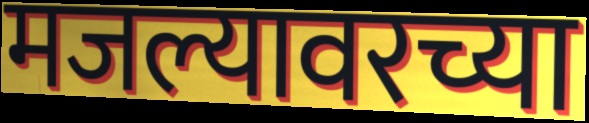
मजल्यावरच्या